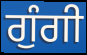
ਗੁੰਗੀ